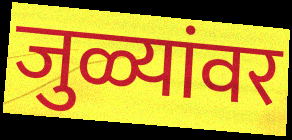
जुळ्यांवर